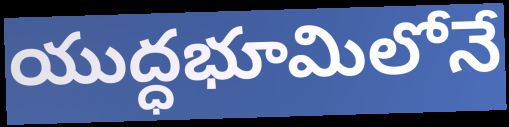
యుద్ధభూమిలోనే